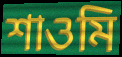
শাওমি